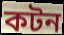
কটন